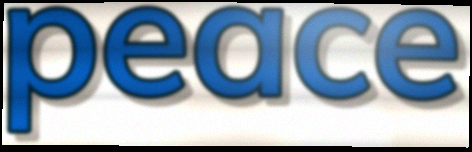
peace